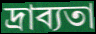
দ্রাব্যতা